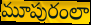
మూపురంలా